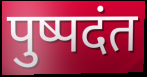
पुष्पदंत